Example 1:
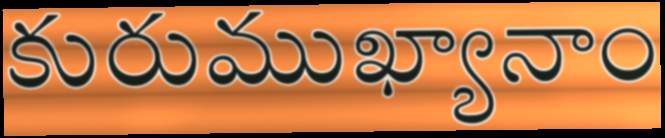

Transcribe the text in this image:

కురుముఖ్యానాం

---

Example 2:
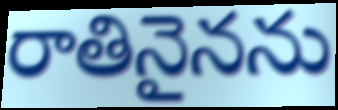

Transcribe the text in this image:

రాతినైనను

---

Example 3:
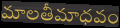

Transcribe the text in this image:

మాలతీమాధవం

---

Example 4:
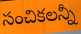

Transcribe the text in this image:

సంచికలన్నీ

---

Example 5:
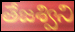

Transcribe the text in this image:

తేజశ్విని